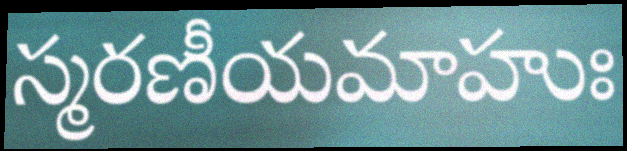
స్మరణీయమాహుః